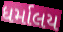
ધર્માલય